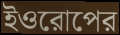
ইওরোপের